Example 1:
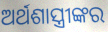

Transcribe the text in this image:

ଅର୍ଥଶାସ୍ତ୍ରୀଙ୍କର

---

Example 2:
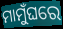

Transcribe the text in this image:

ମାମୁଁଘରେ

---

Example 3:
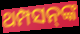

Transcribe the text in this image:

ଥମ୍ପସନ୍‌ଙ୍କ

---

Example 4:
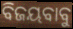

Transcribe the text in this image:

ବିଜୟବାବୁ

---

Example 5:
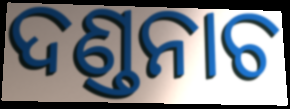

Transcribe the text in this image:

ଦଣ୍ଡନାଚ